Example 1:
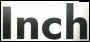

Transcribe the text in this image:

Inch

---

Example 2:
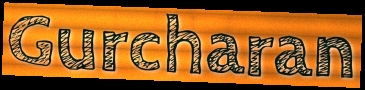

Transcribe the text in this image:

Gurcharan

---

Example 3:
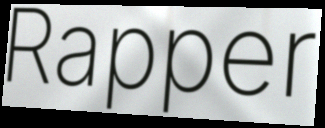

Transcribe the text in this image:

Rapper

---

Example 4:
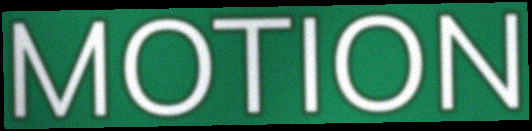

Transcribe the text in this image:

MOTION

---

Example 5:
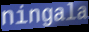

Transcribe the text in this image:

ningala